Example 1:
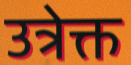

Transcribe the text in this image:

उत्रेक्त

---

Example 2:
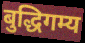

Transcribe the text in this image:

बुद्धिगम्य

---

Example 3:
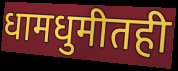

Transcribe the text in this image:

धामधुमीतही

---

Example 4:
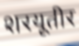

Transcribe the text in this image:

शरयूतीर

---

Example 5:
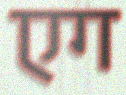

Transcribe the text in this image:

एग